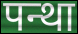
पन्‍था